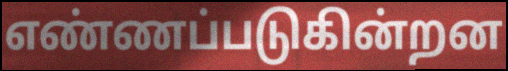
எண்ணப்படுகின்றன